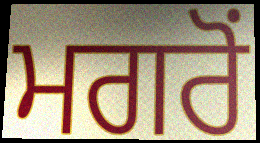
ਮਗਰੋਂ